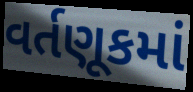
વર્તણૂકમાં